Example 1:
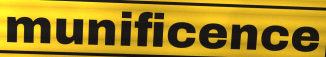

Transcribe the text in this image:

munificence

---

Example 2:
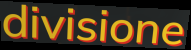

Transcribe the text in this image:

divisione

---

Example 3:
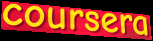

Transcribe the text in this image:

coursera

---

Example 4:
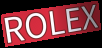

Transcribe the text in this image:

ROLEX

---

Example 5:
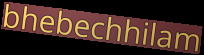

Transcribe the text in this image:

bhebechhilam